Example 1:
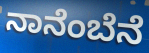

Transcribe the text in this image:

ನಾನೆಂಬೆನೆ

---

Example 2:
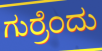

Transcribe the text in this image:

ಗುರ್ರೆಂದು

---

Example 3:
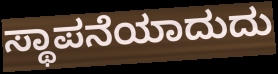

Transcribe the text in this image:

ಸ್ಥಾಪನೆಯಾದುದು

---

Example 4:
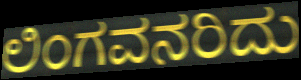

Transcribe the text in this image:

ಲಿಂಗವನರಿದು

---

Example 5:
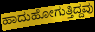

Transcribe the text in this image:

ಹಾದುಹೋಗುತ್ತಿದ್ದವು